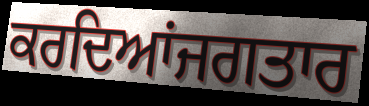
ਕਰਦਿਆਂਜਗਤਾਰ